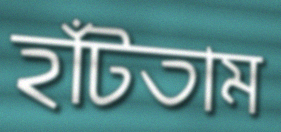
হাঁটতাম